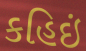
કહિઇં